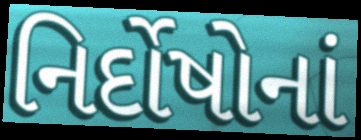
નિર્દોષોનાં